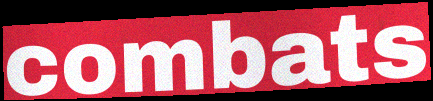
combats